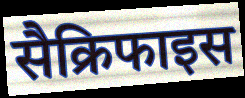
सैक्रिफाइस